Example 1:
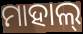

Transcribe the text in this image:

ମାହାଲ୍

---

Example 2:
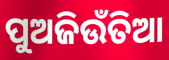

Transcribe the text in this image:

ପୁଅଜିଉଁତିଆ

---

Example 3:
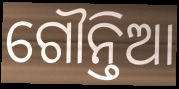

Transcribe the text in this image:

ଗୌନ୍ତିଆ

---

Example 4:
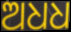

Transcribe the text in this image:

ଅଧଧ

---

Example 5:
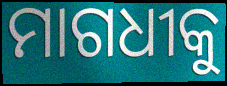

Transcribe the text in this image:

ମାଗଧୀକୁ